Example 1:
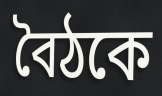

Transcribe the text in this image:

বৈঠকে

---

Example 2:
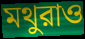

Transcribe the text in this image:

মথুরাও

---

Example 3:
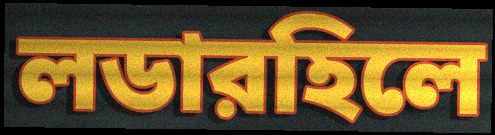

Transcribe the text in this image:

লডারহিলে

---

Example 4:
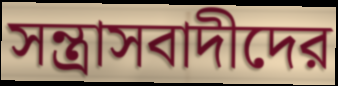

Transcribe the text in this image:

সন্ত্রাসবাদীদের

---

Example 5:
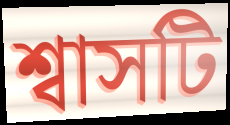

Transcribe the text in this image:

শ্বাসটি